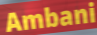
Ambani